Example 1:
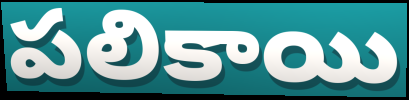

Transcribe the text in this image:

పలికాయి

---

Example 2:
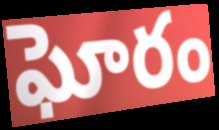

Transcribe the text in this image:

ఘోరం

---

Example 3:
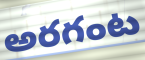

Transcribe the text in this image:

అరగంట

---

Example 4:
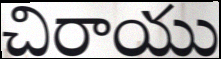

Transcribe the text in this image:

చిరాయు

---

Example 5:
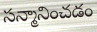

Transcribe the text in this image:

సన్మానించడం